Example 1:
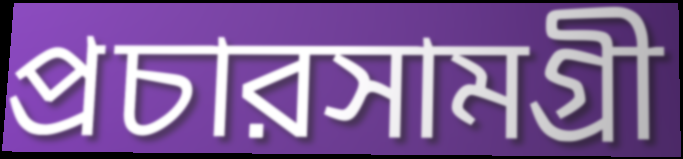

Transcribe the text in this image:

প্রচারসামগ্রী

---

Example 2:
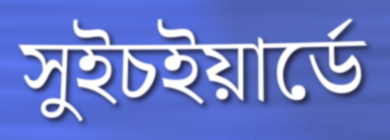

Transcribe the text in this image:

সুইচইয়ার্ডে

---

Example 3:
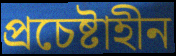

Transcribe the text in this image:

প্রচেষ্টাহীন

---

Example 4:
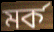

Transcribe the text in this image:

মর্ক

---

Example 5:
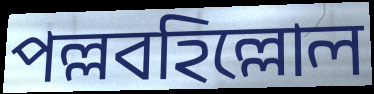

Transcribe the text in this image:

পল্লবহিল্লোল